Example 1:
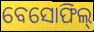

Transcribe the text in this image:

ବେସୋଫିଲ୍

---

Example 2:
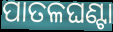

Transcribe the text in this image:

ପାତଳଘଣ୍ଟା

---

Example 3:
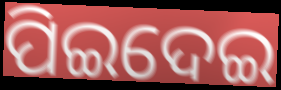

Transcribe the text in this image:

ପିଇଦେଇ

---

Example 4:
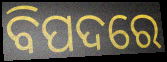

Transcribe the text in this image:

ବିପଦରେ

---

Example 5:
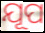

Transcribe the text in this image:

ଯୂପ